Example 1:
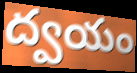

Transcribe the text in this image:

ద్వయం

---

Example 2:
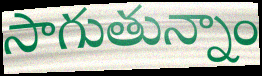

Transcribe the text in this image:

సాగుతున్నాం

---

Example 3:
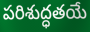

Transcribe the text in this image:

పరిశుద్ధతయే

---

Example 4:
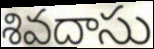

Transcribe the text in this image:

శివదాసు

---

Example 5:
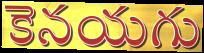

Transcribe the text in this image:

కెనయగు